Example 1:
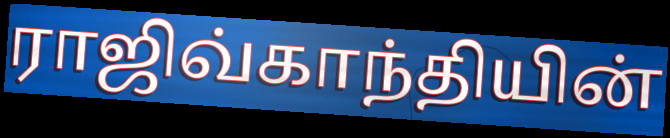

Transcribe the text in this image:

ராஜிவ்காந்தியின்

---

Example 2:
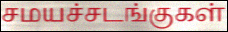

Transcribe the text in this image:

சமயச்சடங்குகள்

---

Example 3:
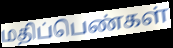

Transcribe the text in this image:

மதிப்பெண்கள்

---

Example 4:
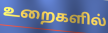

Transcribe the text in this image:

உறைகளில்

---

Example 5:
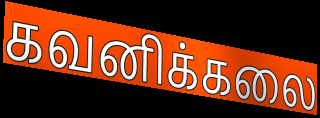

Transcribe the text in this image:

கவனிக்கலை